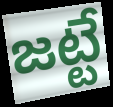
జట్టే